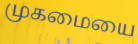
முகமையை